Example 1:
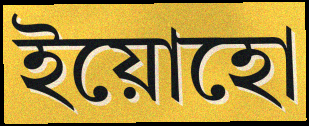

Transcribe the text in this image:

ইয়োহো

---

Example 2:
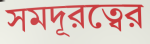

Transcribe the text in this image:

সমদূরত্বের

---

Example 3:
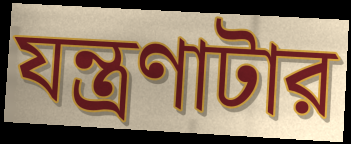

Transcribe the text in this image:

যন্ত্রণাটার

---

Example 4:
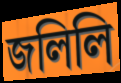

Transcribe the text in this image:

জলিলি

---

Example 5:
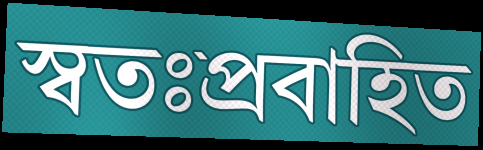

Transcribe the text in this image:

স্বতঃপ্রবাহিত